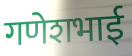
गणेशभाई